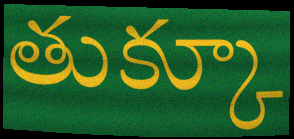
తుక్కూ